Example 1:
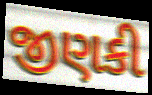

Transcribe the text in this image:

જીણકી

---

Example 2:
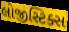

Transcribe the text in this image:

લોજીસ્ટિક્સ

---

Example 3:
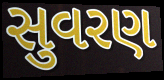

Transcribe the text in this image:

સુવરણ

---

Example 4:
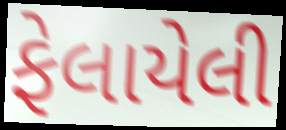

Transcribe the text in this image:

ફેલાયેલી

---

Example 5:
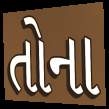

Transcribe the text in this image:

તોના